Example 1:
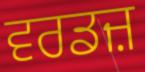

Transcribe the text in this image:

ਵਰਡਜ਼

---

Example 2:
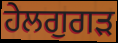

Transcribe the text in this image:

ਹੇਲਗੁਗੜ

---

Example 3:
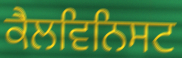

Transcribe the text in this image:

ਕੈਲਵਿਨਿਸਟ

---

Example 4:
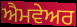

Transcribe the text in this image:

ਐਮਵੇਅਰ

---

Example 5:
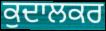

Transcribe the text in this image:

ਕੁਦਾਲਕਰ